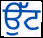
ਉੱਟ